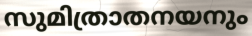
സുമിത്രാതനയനും